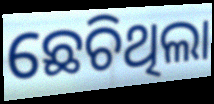
ଛେଚିଥିଲା